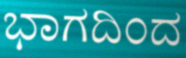
ಭಾಗದಿಂದ